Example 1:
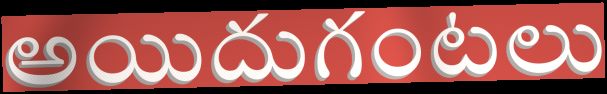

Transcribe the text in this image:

అయిదుగంటలు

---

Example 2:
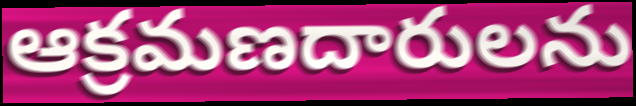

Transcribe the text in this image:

ఆక్రమణదారులను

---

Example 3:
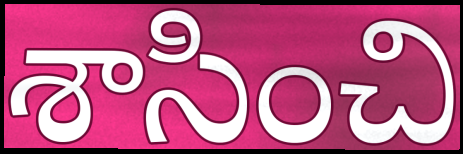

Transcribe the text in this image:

శాసించి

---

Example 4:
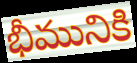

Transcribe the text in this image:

భీమునికి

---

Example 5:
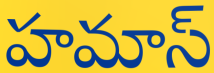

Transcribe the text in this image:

హమాస్